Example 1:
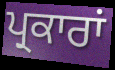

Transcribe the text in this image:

ਪ੍ਰਕਾਰਾਂ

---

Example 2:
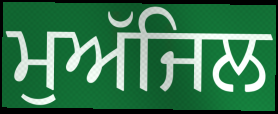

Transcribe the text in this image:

ਮੁਅੱਜਿਲ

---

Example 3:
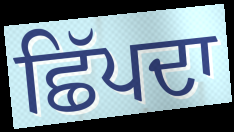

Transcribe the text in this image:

ਛਿੱਪਦਾ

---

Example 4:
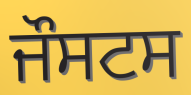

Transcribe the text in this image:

ਜੌਸਟਸ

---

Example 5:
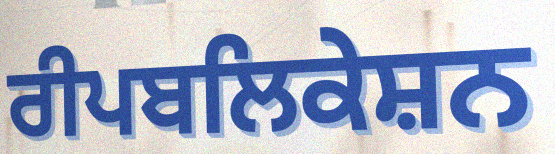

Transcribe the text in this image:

ਰੀਪਬਲਿਕੇਸ਼ਨ